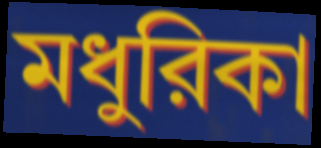
মধুরিকা